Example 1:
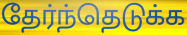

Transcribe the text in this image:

தேர்ந்தெடுக்க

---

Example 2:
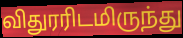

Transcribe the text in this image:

விதுரரிடமிருந்து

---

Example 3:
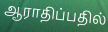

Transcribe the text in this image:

ஆராதிப்பதில்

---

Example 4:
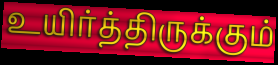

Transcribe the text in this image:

உயிர்த்திருக்கும்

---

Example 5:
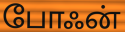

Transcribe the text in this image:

போஃன்